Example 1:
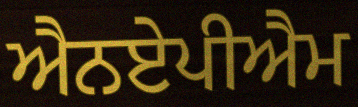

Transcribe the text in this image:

ਐਨਏਪੀਐਮ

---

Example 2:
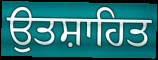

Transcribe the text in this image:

ਉੁਤਸ਼ਾਹਿਤ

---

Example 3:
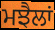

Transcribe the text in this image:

ਮਝੈਲਾਂ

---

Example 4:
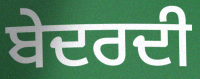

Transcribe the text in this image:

ਬੇਦਰਦੀ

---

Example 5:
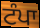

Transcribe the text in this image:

ਟੰਪਾ